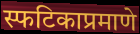
स्फटिकाप्रमाणे